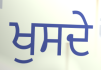
ਖੁਸਦੇ